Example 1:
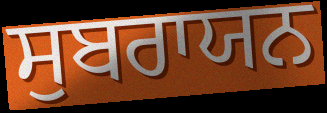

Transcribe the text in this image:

ਸੁਬਰਾਯਨ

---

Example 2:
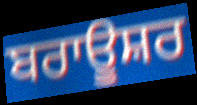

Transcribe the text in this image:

ਬਰਾਊਸ਼ਰ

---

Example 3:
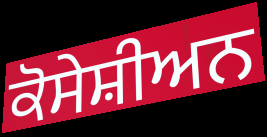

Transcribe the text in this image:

ਕੋਸੇਸ਼ੀਅਨ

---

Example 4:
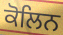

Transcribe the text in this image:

ਕੋਲਿਨ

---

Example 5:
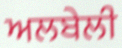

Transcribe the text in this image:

ਅਲਬੇਲੀ